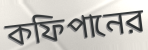
কফিপানের